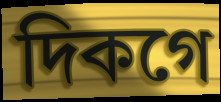
দিকগে